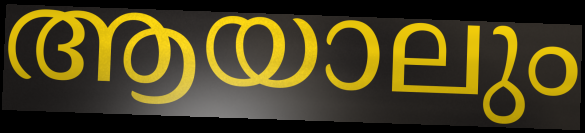
ആയാലും